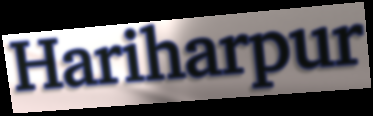
Hariharpur